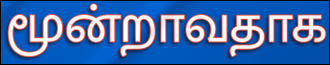
மூன்றாவதாக